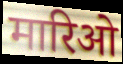
मारिओ